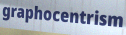
graphocentrism